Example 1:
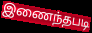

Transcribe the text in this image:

இணைந்தபடி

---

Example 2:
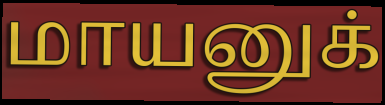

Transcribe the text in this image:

மாயனுக்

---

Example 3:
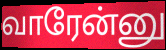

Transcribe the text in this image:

வாரேன்னு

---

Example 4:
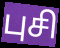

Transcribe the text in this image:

புசி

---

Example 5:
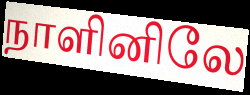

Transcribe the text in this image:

நாளினிலே